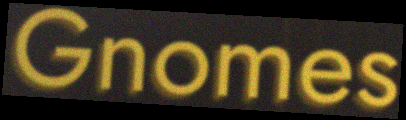
Gnomes